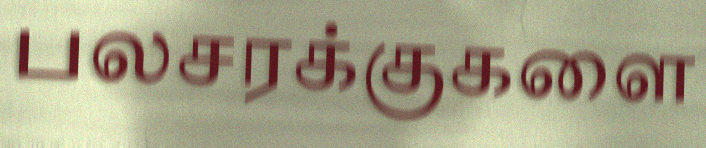
பலசரக்குகளை